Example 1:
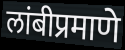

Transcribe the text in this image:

लांबीप्रमाणे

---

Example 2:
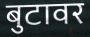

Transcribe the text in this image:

बुटावर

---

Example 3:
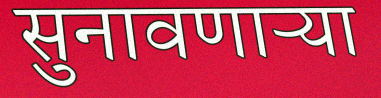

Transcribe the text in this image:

सुनावणाऱ्या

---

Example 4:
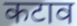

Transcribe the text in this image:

कटाव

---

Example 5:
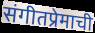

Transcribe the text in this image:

संगीतप्रेमाची